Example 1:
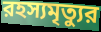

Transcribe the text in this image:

রহস্যমৃত্যুর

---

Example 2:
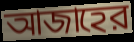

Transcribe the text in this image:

আজাহের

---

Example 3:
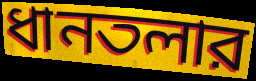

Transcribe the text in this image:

ধানতলার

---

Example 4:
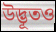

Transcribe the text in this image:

উদ্ভূতও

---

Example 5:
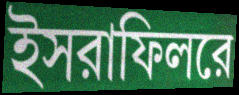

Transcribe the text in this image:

ইসরাফিলরে